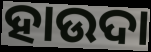
ହାଉଦା